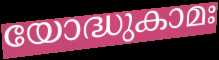
യോദ്ധുകാമഃ